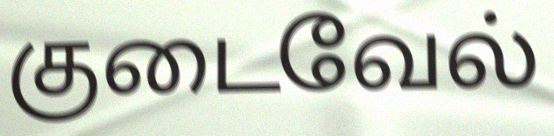
குடைவேல்